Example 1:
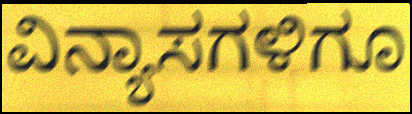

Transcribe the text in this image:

ವಿನ್ಯಾಸಗಳಿಗೂ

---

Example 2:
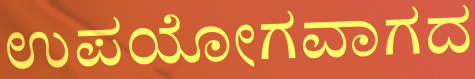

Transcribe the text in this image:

ಉಪಯೋಗವಾಗದ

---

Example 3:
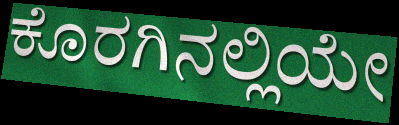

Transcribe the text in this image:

ಕೊರಗಿನಲ್ಲಿಯೇ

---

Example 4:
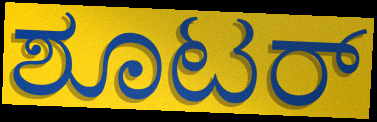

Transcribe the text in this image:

ಶೂಟರ್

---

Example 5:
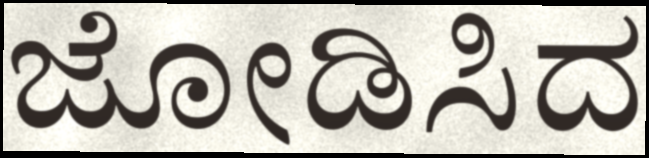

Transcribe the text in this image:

ಜೋಡಿಸಿದ